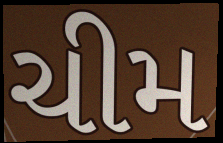
ચીમ